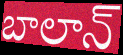
బాలాన్